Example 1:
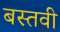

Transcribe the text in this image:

बस्तवी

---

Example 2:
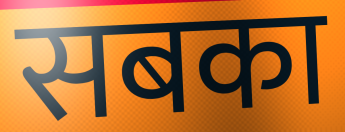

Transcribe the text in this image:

सबका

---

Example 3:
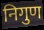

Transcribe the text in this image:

निगुण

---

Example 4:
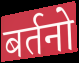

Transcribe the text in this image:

बर्तनो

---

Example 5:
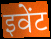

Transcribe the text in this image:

इवेंट